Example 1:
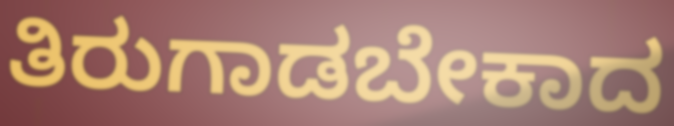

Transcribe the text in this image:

ತಿರುಗಾಡಬೇಕಾದ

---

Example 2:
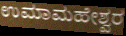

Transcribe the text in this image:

ಉಮಾಮಹೇಶ್ವರ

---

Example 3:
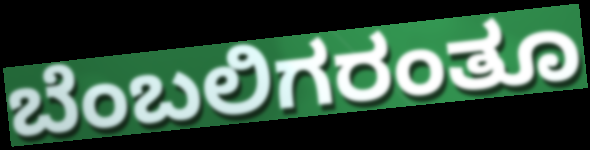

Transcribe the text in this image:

ಬೆಂಬಲಿಗರಂತೂ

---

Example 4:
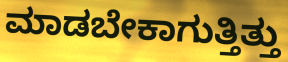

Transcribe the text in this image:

ಮಾಡಬೇಕಾಗುತ್ತಿತ್ತು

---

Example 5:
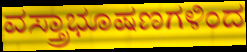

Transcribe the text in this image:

ವಸ್ತ್ರಾಭೂಷಣಗಳಿಂದ